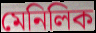
মেনিলিক